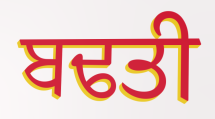
ਬਢਤੀ